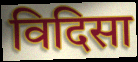
विदिसा